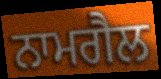
ਨਾਮਗੈਲ